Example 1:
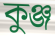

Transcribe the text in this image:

কুঞ্জ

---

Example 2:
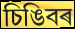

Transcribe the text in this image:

চিঙিবৰ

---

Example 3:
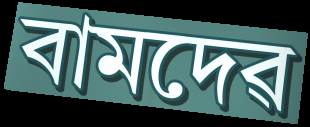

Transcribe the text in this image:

বামদেৱ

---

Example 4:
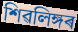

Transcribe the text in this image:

শিৱলিঙ্গৰ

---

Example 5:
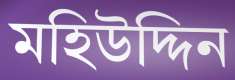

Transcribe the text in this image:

মহিউদ্দিন